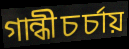
গান্ধীচর্চায়